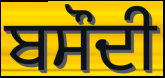
ਬਸੌਦੀ